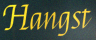
Hangst